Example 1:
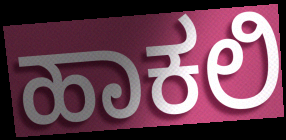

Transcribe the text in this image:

ಹಾಕಲಿ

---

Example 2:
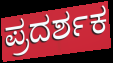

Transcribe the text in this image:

ಪ್ರದರ್ಶಕ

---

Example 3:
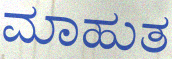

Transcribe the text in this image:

ಮಾಹುತ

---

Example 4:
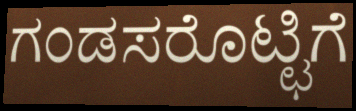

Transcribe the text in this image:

ಗಂಡಸರೊಟ್ಟಿಗೆ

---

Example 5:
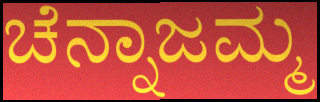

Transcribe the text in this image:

ಚೆನ್ನಾಜಮ್ಮ